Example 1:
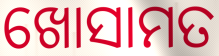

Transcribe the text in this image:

ଖୋସାମତ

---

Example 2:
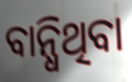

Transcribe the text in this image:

ବାନ୍ଧିଥିବା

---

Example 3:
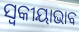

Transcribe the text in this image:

ସ୍ୱକୀୟାଭାବ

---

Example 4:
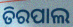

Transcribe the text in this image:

ତିରପାଲ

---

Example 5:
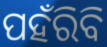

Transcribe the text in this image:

ପହଁରିବି